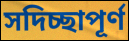
সদিচ্ছাপূর্ণ